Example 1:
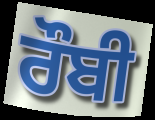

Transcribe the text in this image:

ਰੌਬੀ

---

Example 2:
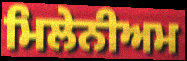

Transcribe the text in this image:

ਮਿਲੇਨੀਅਮ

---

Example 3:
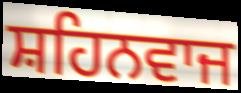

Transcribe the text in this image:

ਸ਼ਹਿਨਵਾਜ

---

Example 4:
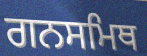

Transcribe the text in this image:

ਗਨਸਮਿਥ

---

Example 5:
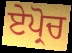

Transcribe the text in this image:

ਏਪ੍ਰੋਚ